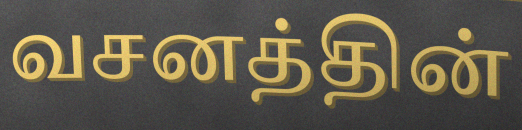
வசனத்தின்